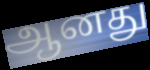
ஆனது